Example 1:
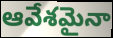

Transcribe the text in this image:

ఆవేశమైనా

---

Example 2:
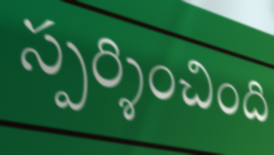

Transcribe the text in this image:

స్పర్శించింది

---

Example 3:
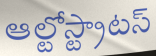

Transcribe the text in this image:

ఆల్టోస్ట్రాటస్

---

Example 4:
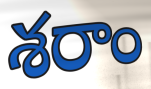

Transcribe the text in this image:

శరాం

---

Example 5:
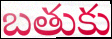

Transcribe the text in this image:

బతుకు